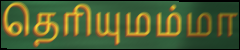
தெரியுமம்மா